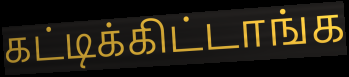
கட்டிக்கிட்டாங்க